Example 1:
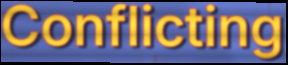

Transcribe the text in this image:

Conflicting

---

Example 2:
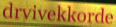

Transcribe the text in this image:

drvivekkorde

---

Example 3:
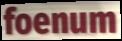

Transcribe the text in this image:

foenum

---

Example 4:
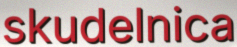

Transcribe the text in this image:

skudelnica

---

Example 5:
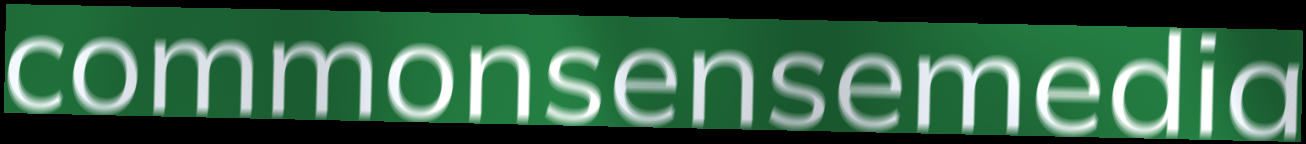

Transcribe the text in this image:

commonsensemedia